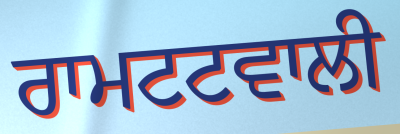
ਰਾਮਟਟਵਾਲੀ